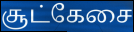
சூட்கேசை